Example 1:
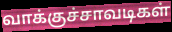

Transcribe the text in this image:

வாக்குச்சாவடிகள்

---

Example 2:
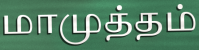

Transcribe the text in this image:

மாமுத்தம்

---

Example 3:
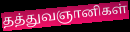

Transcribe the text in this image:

தத்துவஞானிகள்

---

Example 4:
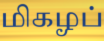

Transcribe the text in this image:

மிகழப்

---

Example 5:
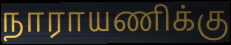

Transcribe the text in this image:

நாராயணிக்கு